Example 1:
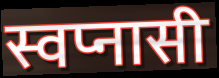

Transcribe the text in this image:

स्वप्नासी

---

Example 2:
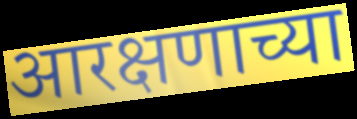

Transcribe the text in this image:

आरक्षणाच्या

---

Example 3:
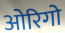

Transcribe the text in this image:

ओरिगो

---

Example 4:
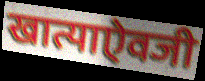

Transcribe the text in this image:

खात्याऐवजी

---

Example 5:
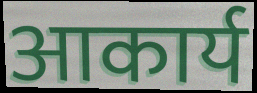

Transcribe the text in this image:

आकार्य